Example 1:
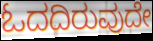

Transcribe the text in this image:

ಓದದಿರುವುದೇ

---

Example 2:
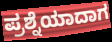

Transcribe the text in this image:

ಪ್ರಶ್ನೆಯಾದಾಗ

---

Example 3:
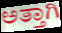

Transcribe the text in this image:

ಅತ್ತಾಗಿ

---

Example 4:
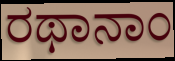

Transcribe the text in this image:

ರಥಾನಾಂ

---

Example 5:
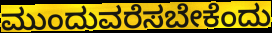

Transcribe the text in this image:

ಮುಂದುವರೆಸಬೇಕೆಂದು